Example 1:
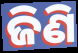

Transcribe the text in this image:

ଜିଣି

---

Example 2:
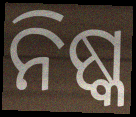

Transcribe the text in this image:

ନିଷ୍କ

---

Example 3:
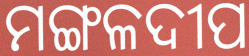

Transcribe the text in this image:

ମଙ୍ଗଳଦୀପ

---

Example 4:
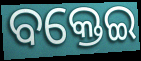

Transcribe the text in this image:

ବକ୍ତେଇ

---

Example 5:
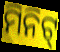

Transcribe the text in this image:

ମିନିଟ୍